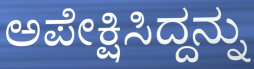
ಅಪೇಕ್ಷಿಸಿದ್ದನ್ನು